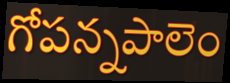
గోపన్నపాలెం